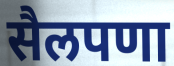
सैलपणा